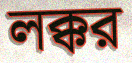
লক্কর